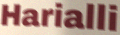
Harialli